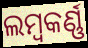
ଲମ୍ୱକର୍ଣ୍ଣ